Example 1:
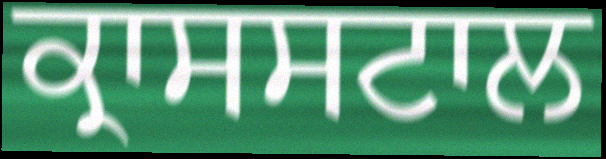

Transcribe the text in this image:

ਕ੍ਰਾਸਸਟਾਲ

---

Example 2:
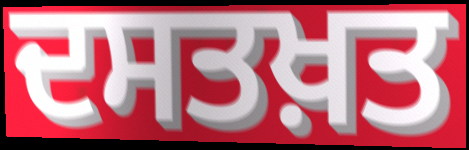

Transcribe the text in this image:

ਦਸਤਖ਼ਤ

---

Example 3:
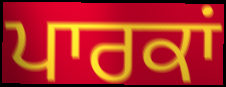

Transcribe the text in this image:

ਪਾਰਕਾਂ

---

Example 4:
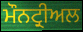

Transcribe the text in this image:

ਮੌਨਟ੍ਰੀਅਲ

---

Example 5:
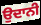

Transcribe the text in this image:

ਉਦਾਨੀ